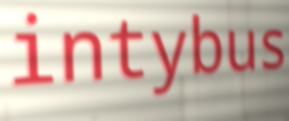
intybus